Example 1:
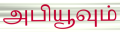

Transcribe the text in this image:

அபியூவும்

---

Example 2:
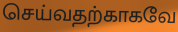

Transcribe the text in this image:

செய்வதற்காகவே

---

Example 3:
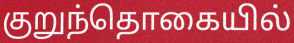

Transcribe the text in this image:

குறுந்தொகையில்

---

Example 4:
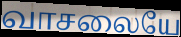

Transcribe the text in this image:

வாசலையே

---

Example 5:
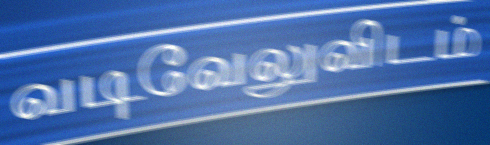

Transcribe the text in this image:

வடிவேலுவிடம்